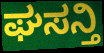
ಘಸನ್ತಿ